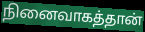
நினைவாகத்தான்